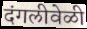
दंगलीवेळी